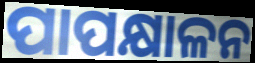
ପାପକ୍ଷାଳନ